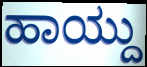
ಹಾಯ್ದು